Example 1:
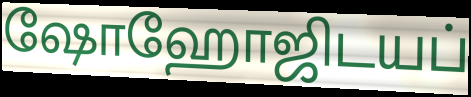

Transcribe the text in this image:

ஷோஹோஜிடயப்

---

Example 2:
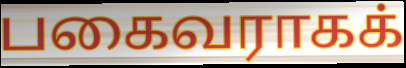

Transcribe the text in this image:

பகைவராகக்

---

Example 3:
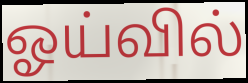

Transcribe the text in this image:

ஓய்வில்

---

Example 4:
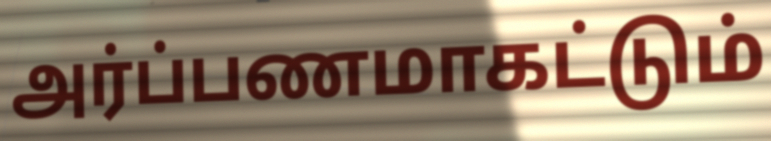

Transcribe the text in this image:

அர்ப்பணமாகட்டும்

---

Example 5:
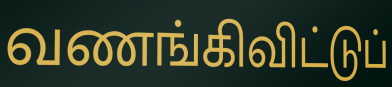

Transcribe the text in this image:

வணங்கிவிட்டுப்